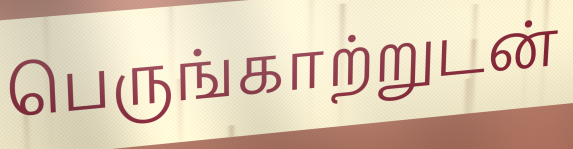
பெருங்காற்றுடன்